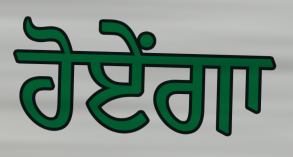
ਹੋਏਂਗਾ